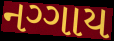
નગ્ગાય